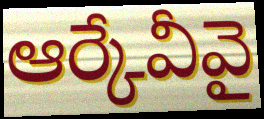
ఆర్కేవీవై